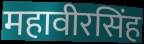
महावीरसिंह